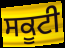
ਸਕੂਟੀ